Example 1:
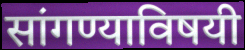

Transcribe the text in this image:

सांगण्याविषयी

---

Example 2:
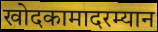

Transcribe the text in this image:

खोदकामादरम्यान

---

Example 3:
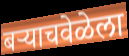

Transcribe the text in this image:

बर्‍याचवेळेला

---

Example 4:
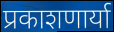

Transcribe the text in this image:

प्रकाशणार्या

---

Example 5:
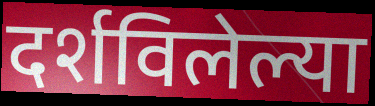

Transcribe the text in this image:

दर्शविलेल्या